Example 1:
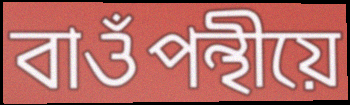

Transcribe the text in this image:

বাওঁপন্থীয়ে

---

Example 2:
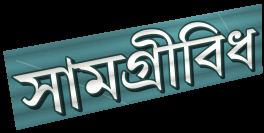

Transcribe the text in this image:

সামগ্ৰীবিধ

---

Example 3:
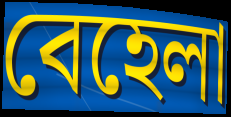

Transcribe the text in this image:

বেহেলা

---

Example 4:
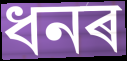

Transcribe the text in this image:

ধনৰ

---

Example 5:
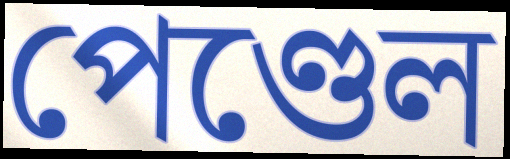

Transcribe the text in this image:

পেণ্ডেল